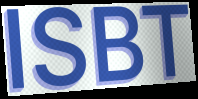
ISBT